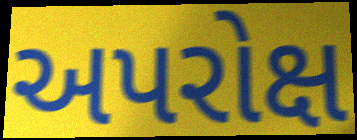
અપરોક્ષ